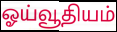
ஓய்வூதியம்